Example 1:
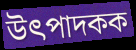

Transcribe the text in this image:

উৎপাদকক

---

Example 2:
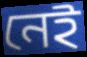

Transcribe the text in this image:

নেই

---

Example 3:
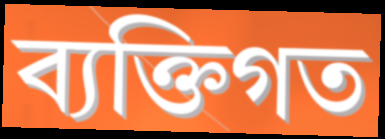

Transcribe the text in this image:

ব্যক্তিগত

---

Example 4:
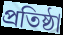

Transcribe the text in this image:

প্ৰতিষ্ঠা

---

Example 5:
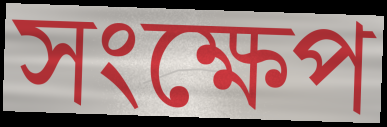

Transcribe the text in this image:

সংক্ষেপ